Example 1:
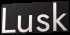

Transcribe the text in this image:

Lusk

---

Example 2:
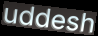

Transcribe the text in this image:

uddesh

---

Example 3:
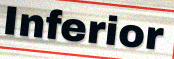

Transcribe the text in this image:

Inferior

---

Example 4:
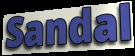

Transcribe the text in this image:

Sandal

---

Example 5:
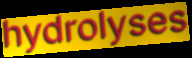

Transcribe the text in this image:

hydrolyses